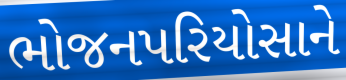
ભોજનપરિયોસાને